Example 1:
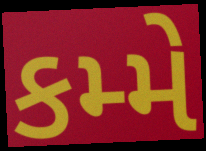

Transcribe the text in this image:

કમ્મે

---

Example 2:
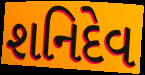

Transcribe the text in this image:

શનિદેવ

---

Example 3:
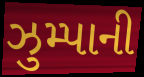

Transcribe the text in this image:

ઝુમ્પાની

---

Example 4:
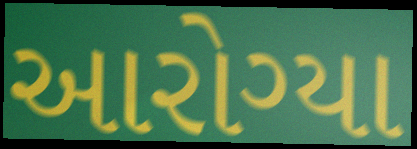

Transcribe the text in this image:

આરોગ્યા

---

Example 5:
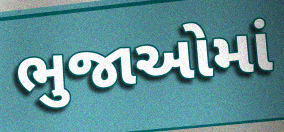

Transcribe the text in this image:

ભુજાઓમાં